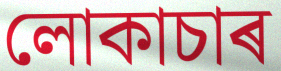
লোকাচাৰ